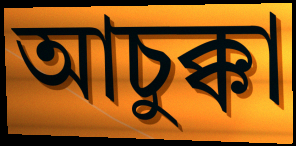
আচুক্কা